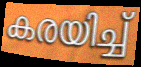
കരയിച്ച്